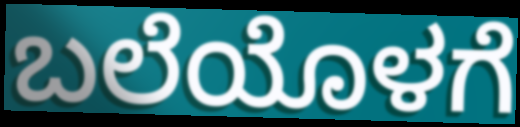
ಬಲೆಯೊಳಗೆ